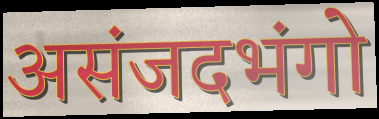
असंजदभंगो